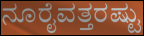
ನೂರೈವತ್ತರಷ್ಟು